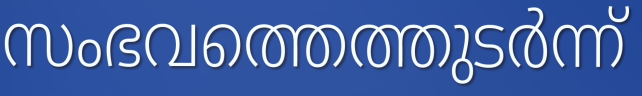
സംഭവത്തെത്തുടർന്ന്